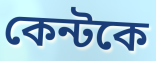
কেন্টকে